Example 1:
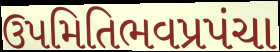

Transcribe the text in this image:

ઉપમિતિભવપ્રપંચા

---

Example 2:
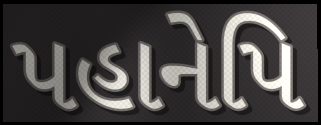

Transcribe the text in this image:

પહાનેપિ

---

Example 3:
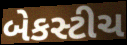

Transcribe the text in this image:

બેકસ્ટીચ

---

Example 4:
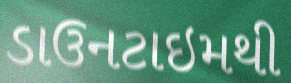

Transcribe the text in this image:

ડાઉનટાઇમથી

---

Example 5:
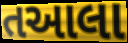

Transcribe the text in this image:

તઆલા